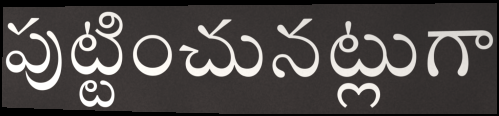
పుట్టించునట్లుగా